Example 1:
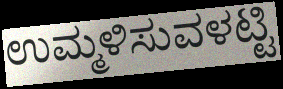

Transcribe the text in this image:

ಉಮ್ಮಳಿಸುವಳಟ್ಟಿ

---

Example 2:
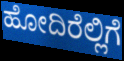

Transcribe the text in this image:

ಹೋದಿರೆಲ್ಲಿಗೆ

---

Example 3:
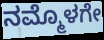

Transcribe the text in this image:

ನಮ್ಮೊಳಗೇ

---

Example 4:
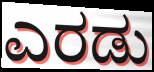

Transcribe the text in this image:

ಎರಡು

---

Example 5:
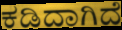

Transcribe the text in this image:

ಕಡಿದಾಗಿದೆ